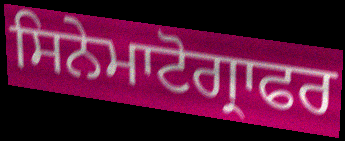
ਸਿਨੇਮਾਟੋਗ੍ਰਾਫਰ